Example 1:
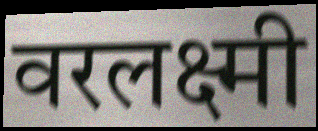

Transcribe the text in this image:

वरलक्ष्‍मी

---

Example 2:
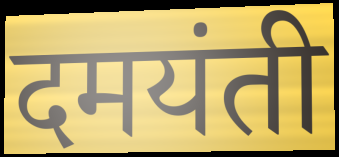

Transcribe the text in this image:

दमयंती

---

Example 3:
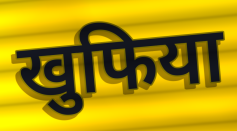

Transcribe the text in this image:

खुफिया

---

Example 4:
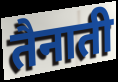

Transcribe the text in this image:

तैनाती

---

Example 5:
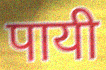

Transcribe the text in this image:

पायी